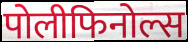
पोलीफिनोल्स